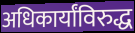
अधिकार्यांविरुद्ध